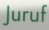
Juruf